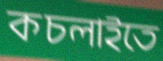
কচলাইতে